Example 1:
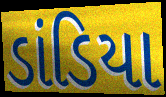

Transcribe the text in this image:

ડાંડિયા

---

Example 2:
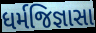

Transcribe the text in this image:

ધર્મજિજ્ઞાસા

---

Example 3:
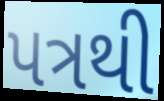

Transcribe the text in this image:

પત્રથી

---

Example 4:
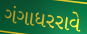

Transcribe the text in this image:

ગંગાધરરાવે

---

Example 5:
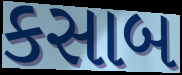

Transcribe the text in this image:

કસાબ